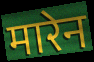
मारेन